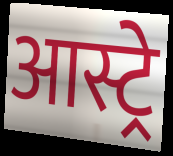
आस्ट्रे